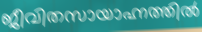
ജീവിതസായാഹ്നത്തിൽ